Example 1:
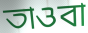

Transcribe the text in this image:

তাওবা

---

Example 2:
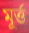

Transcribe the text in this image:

মূর্ত্ত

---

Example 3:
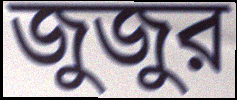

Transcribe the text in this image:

জুজুর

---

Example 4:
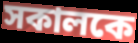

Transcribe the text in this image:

সকালকে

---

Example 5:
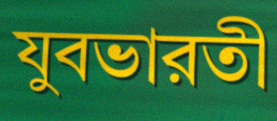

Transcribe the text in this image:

যুবভারতী